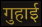
गुहाई